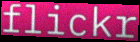
flickr